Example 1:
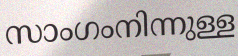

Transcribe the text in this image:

സാംഗംനിന്നുള്ള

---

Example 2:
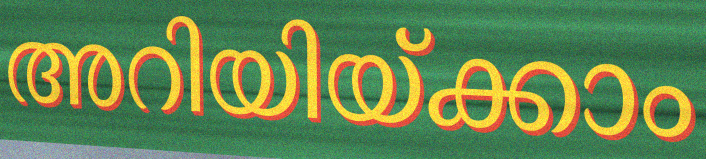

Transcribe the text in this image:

അറിയിയ്ക്കാം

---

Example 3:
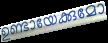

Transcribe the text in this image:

ഉണ്ടായേക്കുമോ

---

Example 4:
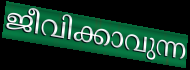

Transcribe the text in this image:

ജീവിക്കാവുന്ന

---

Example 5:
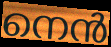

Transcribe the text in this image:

നെൻ